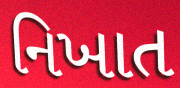
નિખાત